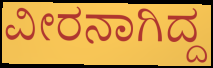
ವೀರನಾಗಿದ್ದ